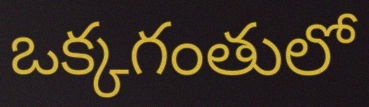
ఒక్కగంతులో